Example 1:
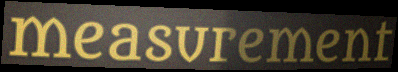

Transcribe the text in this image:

measurement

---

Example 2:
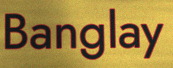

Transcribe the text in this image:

Banglay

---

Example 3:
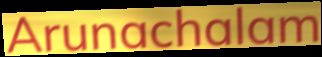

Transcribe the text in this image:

Arunachalam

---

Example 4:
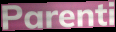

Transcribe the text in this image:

Parenti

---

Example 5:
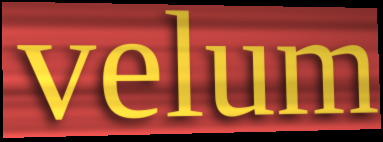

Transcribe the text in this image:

velum